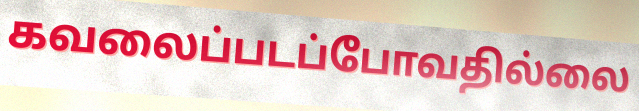
கவலைப்படப்போவதில்லை